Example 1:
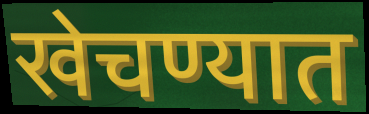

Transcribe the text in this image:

खेचण्यात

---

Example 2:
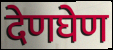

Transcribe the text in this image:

देणघेण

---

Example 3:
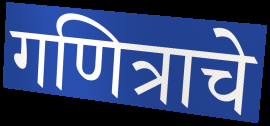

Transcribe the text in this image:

गणित्राचे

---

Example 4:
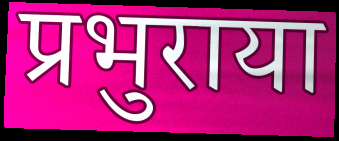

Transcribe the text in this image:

प्रभुराया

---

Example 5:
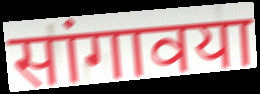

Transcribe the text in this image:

सांगावया